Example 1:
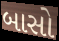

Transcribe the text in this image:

બાસો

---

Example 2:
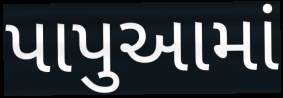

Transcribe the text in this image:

પાપુઆમાં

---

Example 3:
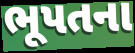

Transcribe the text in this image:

ભૂપતના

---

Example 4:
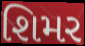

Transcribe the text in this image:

શિમર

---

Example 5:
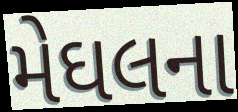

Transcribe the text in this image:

મેઘલના